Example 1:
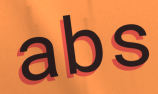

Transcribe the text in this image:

abs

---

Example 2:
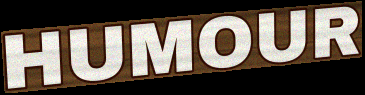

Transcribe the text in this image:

HUMOUR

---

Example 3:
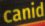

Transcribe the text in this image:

canid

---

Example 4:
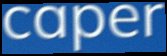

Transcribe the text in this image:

caper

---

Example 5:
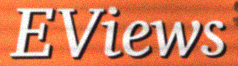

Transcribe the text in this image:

EViews